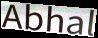
Abhal